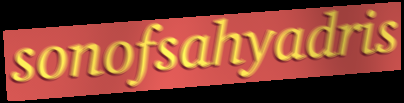
sonofsahyadris